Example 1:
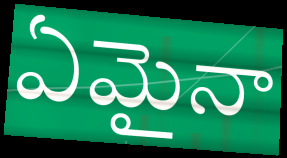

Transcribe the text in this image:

ఏమైనా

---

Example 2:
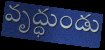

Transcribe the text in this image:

వృద్ధుండు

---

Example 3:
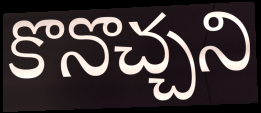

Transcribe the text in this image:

కొనొచ్చని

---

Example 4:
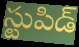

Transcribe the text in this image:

స్టుపిడ్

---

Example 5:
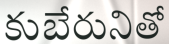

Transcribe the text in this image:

కుబేరునితో